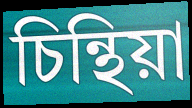
চিন্থিয়া